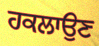
ਹਕਲਾਉਣ